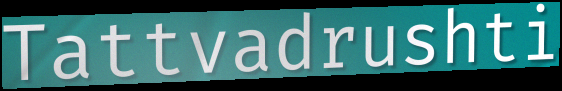
Tattvadrushti